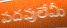
పదవులేమీ